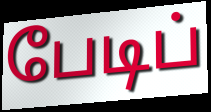
பேடிப்